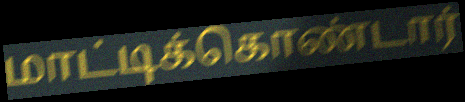
மாட்டிக்கொண்டார்